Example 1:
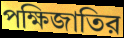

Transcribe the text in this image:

পক্ষিজাতির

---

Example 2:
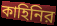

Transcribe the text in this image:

কাহিনির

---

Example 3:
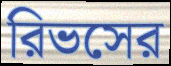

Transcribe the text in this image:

রিভসের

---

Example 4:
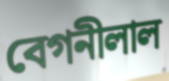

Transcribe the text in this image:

বেগনীলাল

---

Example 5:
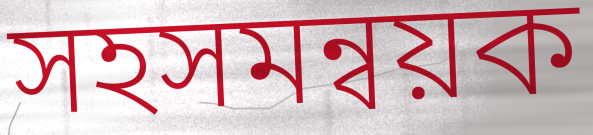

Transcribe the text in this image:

সহসমন্বয়ক